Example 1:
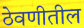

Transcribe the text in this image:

ठेवणीतील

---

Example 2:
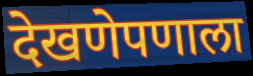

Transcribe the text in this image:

देखणेपणाला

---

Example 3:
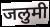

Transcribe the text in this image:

जलुमी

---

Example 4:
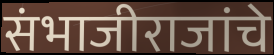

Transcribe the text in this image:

संभाजीराजांचे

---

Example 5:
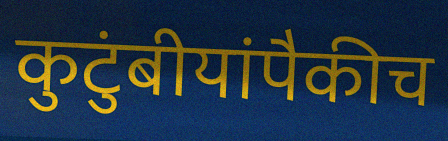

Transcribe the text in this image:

कुटुंबीयांपैकीच